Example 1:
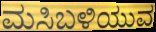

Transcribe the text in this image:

ಮಸಿಬಳಿಯುವ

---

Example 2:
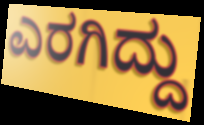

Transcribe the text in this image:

ಎರಗಿದ್ದು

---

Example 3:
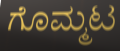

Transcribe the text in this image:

ಗೊಮ್ಮಟ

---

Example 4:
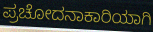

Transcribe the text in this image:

ಪ್ರಚೋದನಾಕಾರಿಯಾಗಿ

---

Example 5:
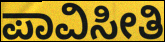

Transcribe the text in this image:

ಪಾವಿಸೀತಿ